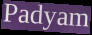
Padyam